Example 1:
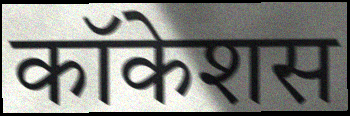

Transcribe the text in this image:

कॉकेशस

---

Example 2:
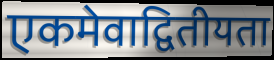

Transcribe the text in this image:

एकमेवाद्वितीयता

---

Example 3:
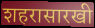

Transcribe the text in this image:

शहरासारखी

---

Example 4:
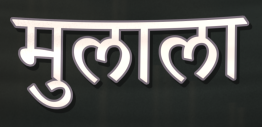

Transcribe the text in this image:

मुलाला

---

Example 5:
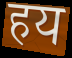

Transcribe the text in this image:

हय